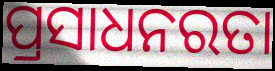
ପ୍ରସାଧନରତା